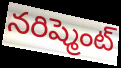
నరిష్మెంట్